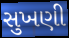
સુખણી